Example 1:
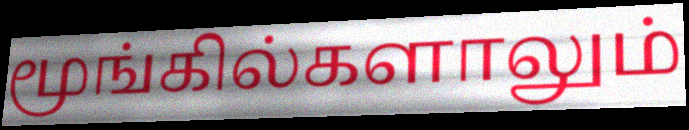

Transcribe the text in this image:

மூங்கில்களாலும்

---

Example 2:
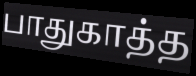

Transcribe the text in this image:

பாதுகாத்த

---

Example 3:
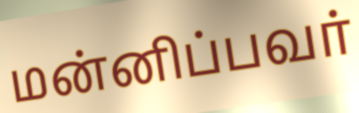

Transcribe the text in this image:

மன்னிப்பவர்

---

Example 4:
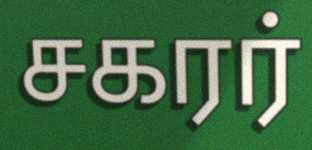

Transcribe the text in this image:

சகரர்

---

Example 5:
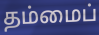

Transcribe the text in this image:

தம்மைப்